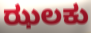
ಝಲಕು